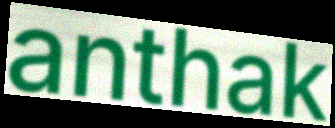
anthak